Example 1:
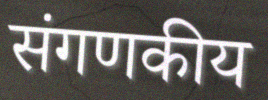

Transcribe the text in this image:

संगणकीय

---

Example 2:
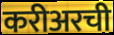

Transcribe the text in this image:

करीअरची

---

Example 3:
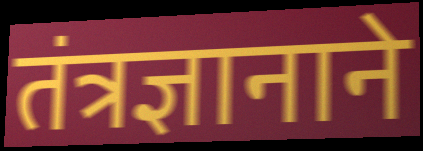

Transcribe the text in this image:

तंत्रज्ञानाने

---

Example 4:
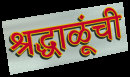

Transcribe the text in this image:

श्रद्धाळूंची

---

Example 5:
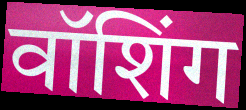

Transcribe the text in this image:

वॉशिंग